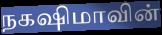
நகஷிமாவின்